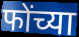
फोंच्या